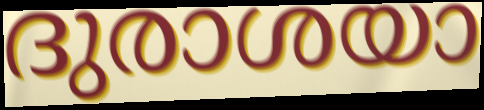
ദുരാശയാ